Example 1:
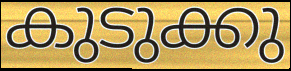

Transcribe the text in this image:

കുടുക്കു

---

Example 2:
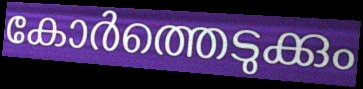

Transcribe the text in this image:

കോർത്തെടുക്കും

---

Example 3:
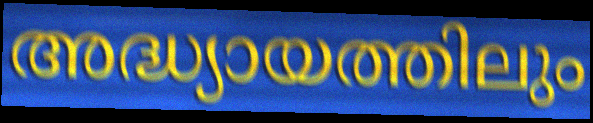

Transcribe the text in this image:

അദ്ധ്യായത്തിലും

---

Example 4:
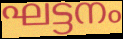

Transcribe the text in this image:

ഘട്ടനം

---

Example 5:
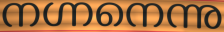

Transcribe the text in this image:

നഗ്നനെന്നു